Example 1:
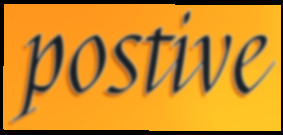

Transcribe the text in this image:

postive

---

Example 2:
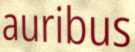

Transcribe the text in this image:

auribus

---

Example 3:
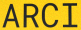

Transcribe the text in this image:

ARCI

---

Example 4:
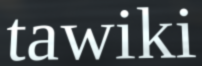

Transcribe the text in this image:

tawiki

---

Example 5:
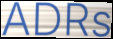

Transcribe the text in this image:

ADRs